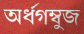
অর্ধগম্বুজ